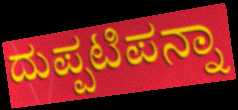
ದುಪ್ಪಟಿಪನ್ನಾ